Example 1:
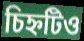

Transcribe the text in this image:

চিহ্নটিও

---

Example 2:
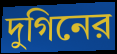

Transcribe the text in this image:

দুগিনের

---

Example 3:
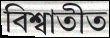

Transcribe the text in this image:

বিশ্বাতীত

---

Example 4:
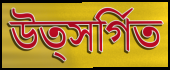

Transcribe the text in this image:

উত্সর্গিত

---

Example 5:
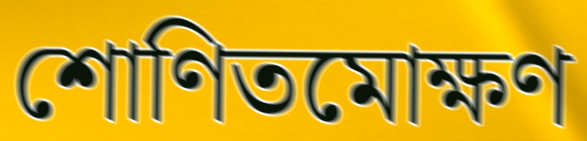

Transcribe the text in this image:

শোণিতমোক্ষণ